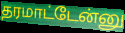
தரமாட்டேன்னு